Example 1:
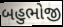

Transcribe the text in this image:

બહુભોજી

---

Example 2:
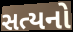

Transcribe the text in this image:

સત્યનો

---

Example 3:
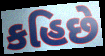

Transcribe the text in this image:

કહિછે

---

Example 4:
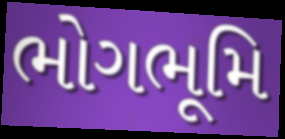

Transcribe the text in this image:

ભોગભૂમિ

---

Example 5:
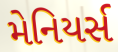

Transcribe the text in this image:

મેનિયર્સ